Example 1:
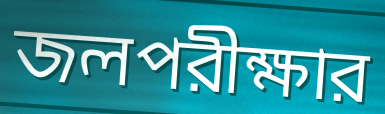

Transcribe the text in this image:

জলপরীক্ষার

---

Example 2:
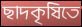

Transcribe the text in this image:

ছাদকৃষিতে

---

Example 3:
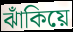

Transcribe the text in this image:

ঝাঁকিয়ে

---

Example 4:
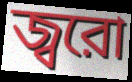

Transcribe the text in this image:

জ্বরো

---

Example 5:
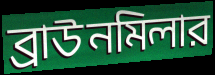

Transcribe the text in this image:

ব্রাউনমিলার